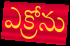
ఎక్రోను